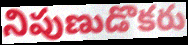
నిపుణుడొకరు